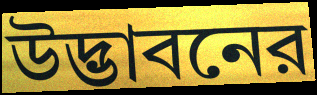
উদ্ভাবনের